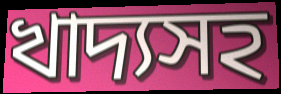
খাদ্যসহ